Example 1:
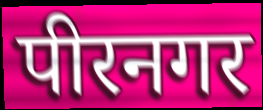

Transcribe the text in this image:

पीरनगर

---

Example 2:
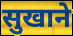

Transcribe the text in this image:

सुखाने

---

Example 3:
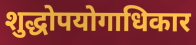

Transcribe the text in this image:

शुद्धोपयोगाधिकार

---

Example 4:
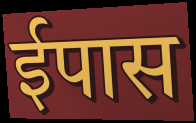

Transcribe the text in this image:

ईपास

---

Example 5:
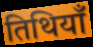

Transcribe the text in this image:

तिथियाँ